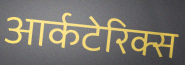
आर्कटेरिक्स